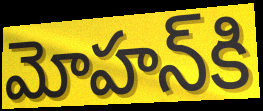
మోహన్‌కి